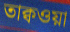
তাক্বওয়া